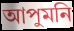
আপুমনি